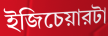
ইজিচেয়ারটা